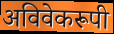
अविवेकरूपी